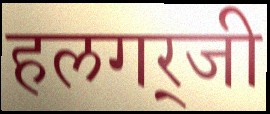
हलगर्जी